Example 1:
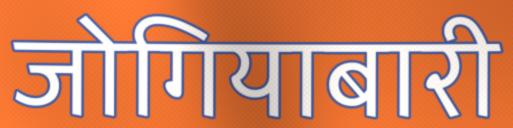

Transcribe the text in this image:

जोगियाबारी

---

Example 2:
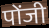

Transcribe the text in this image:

पोंजी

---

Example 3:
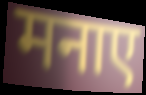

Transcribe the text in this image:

मनाए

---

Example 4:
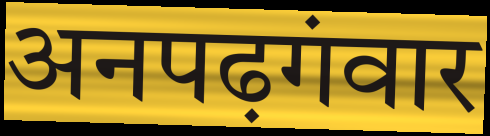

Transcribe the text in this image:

अनपढ़गंवार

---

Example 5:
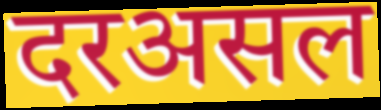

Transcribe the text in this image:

दरअसल